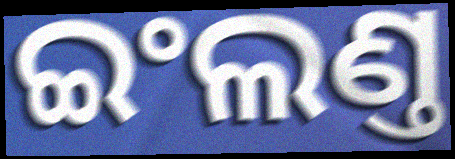
ଇଂଲଣ୍ତ